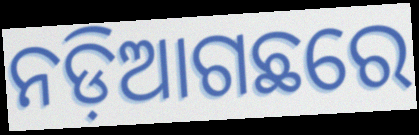
ନଡ଼ିଆଗଛରେ